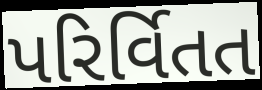
પરિર્વિતત